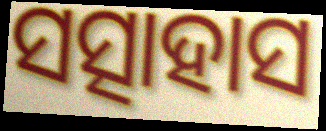
ସତ୍ସାହାସ